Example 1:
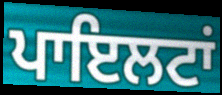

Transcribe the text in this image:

ਪਾਇਲਟਾਂ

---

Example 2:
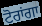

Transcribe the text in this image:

ਟੋਰਾਂਗਾ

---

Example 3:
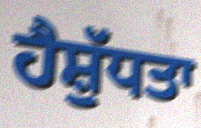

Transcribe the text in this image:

ਹੈਸ਼ੁੱਧਤਾ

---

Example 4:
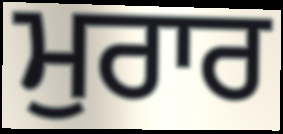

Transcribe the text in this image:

ਮੁਰਾਰ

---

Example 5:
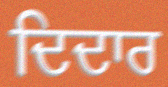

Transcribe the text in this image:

ਦਿਦਾਰ